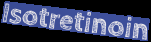
Isotretinoin